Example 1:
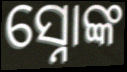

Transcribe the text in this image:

ସ୍ନୋଙ୍କ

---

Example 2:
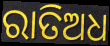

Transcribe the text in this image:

ରାତିଅଧ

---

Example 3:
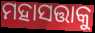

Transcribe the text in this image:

ମହାସତ୍ତାକୁ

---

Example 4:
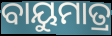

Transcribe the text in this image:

ବାୟୁମାତ୍ର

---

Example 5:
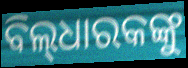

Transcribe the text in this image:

ବିଲ୍‌ଧାରକଙ୍କୁ